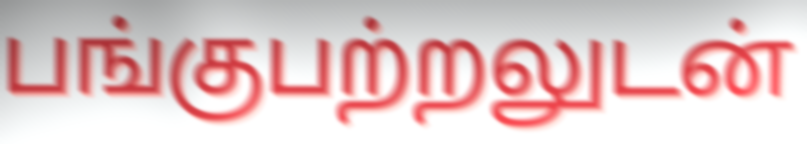
பங்குபற்றலுடன்